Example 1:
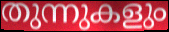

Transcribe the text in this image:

തുന്നുകളും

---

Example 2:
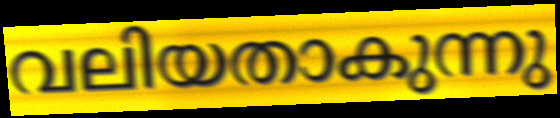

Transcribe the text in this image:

വലിയതാകുന്നു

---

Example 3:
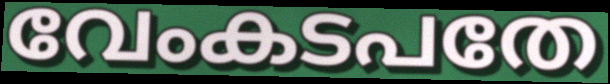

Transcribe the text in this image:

വേംകടപതേ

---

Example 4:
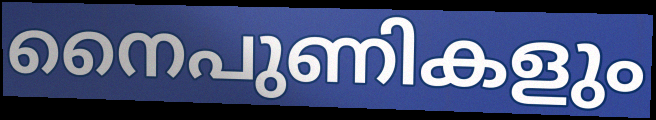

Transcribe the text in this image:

നൈപുണികളും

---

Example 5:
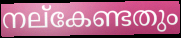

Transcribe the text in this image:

നല്കേണ്ടതും